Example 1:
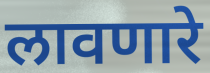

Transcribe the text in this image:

लावणारे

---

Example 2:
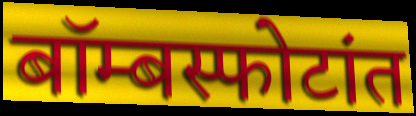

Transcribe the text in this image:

बॉम्बस्फोटांत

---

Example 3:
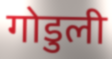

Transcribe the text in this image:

गोडुली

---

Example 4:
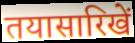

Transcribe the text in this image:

तयासारिखें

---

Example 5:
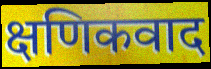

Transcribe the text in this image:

क्षणिकवाद